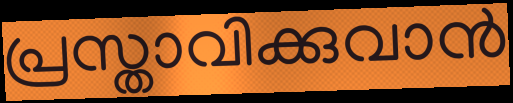
പ്രസ്താവിക്കുവാൻ